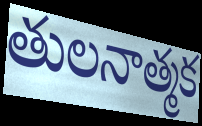
తులనాత్మక